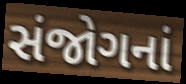
સંજોગનાં